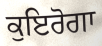
ਕੁਇਰੋਗਾ